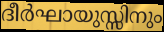
ദീർഘായുസ്സിനും